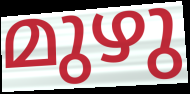
മുഴു